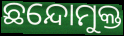
ଛନ୍ଦୋମୁକ୍ତ